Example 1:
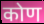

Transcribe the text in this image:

कोण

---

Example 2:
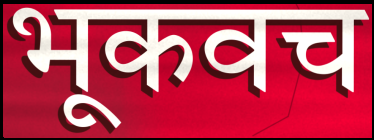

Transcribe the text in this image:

भूकवच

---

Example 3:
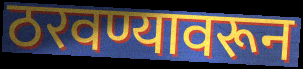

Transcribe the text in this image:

ठरवण्यावरून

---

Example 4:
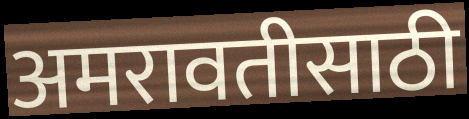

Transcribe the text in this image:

अमरावतीसाठी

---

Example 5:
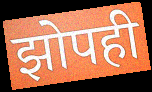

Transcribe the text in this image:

झोपही